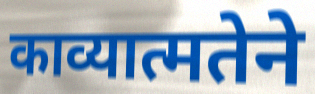
काव्यात्मतेने